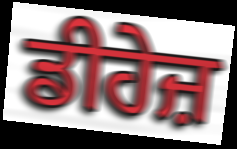
ਡੀਹੇਜ਼